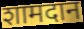
शामदान